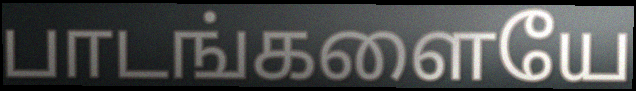
பாடங்களையே